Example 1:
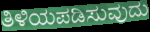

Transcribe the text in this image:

ತಿಳಿಯಪಡಿಸುವುದು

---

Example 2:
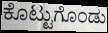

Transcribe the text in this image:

ಕೊಟ್ಟುಗೊಂಡು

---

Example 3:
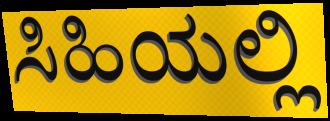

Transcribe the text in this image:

ಸಿಹಿಯಲ್ಲಿ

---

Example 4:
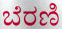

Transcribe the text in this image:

ಬೆರಣಿ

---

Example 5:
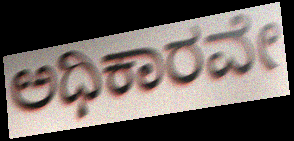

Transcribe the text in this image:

ಅಧಿಕಾರವೇ